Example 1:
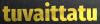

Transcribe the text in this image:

tuvaittatu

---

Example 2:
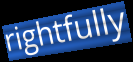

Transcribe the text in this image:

rightfully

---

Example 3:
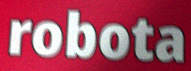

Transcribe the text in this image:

robota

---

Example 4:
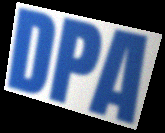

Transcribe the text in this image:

DPA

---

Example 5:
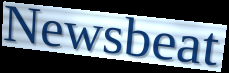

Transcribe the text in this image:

Newsbeat